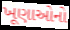
ખૂણાઓનો